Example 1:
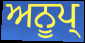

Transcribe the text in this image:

ਅਨੂਪ੍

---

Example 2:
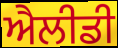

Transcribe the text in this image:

ਐਲੀਡੀ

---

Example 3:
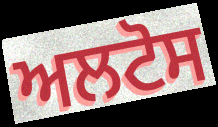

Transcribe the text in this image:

ਅਲਟੋਸ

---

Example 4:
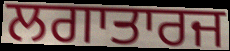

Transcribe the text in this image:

ਲਗਾਤਾਰਜ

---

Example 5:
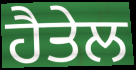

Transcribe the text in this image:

ਹੈਤੇਲ